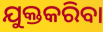
ଯୁକ୍ତକରିବା